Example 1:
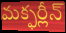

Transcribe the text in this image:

మక్ఫర్లీన్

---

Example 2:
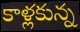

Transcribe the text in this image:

కాళ్లకున్న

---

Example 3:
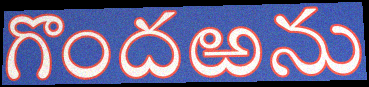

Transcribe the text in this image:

గొందఱను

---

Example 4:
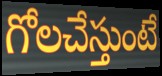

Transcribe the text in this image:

గోలచేస్తుంటే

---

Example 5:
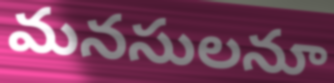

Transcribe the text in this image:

మనసులనూ